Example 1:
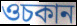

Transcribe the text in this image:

ওচকান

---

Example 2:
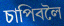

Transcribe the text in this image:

চাপিবলৈ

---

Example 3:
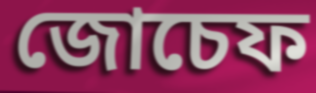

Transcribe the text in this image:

জোচেফ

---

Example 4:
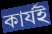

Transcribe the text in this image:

কাৰ্যই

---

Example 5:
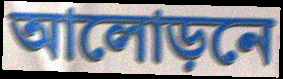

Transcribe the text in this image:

আলোড়নে